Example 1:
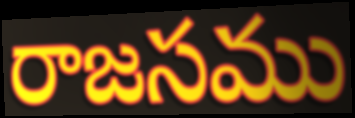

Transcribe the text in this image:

రాజసము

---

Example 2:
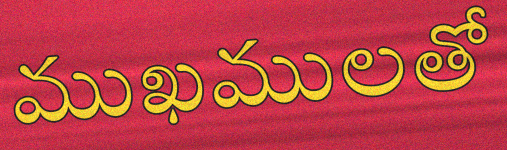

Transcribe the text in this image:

ముఖములతో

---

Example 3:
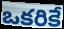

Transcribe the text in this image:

ఒకరికే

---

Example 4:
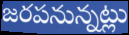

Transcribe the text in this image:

జరపనున్నట్లు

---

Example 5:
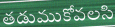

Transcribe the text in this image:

తడుముకోవలసి